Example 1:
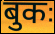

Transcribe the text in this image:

बुकः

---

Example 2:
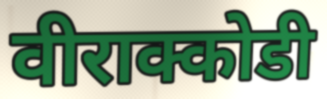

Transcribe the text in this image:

वीराक्कोडी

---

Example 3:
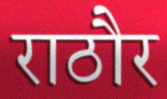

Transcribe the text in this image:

राठौर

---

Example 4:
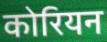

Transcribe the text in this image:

कोरियन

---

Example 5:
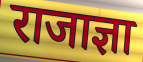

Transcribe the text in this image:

राजाज्ञा